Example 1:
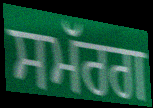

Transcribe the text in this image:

ਸਮੱਰਗ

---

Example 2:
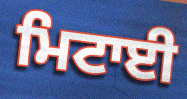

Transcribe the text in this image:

ਮਿਟਾਈ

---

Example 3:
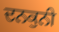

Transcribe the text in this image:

ਦਨਕੁਨੀ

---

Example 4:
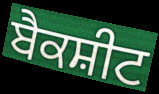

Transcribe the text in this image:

ਬੈਕਸ਼ੀਟ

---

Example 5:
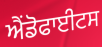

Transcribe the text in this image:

ਐਂਡੋਫਾਈਟਸ